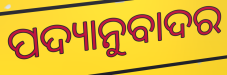
ପଦ୍ୟାନୁବାଦର